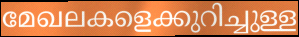
മേഖലകളെക്കുറിച്ചുള്ള